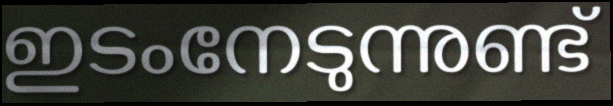
ഇടംനേടുന്നുണ്ട്